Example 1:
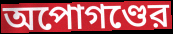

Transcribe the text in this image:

অপোগণ্ডের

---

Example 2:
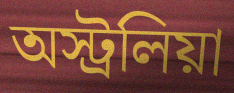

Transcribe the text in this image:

অস্ট্রলিয়া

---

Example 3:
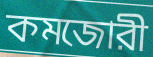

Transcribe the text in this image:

কমজোরী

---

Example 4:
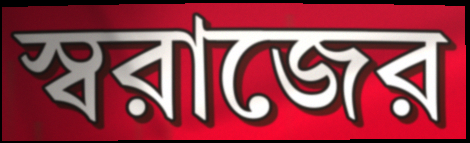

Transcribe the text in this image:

স্বরাজের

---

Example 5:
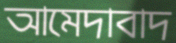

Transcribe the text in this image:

আমেদাবাদ